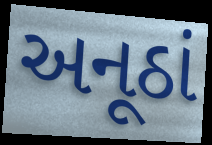
અનૂઠાં